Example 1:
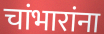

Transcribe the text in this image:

चांभारांना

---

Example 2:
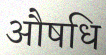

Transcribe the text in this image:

औषधि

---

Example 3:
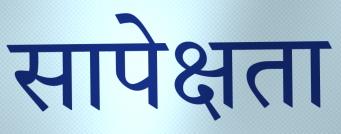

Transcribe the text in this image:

सापेक्षता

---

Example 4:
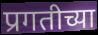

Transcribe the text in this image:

प्रगतीच्या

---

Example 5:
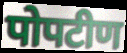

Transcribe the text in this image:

पोपटीण